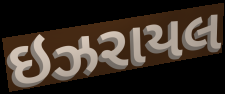
ઇઝરાયલ